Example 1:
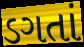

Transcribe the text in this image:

ડગતાં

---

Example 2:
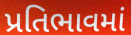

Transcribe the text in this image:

પ્રતિભાવમાં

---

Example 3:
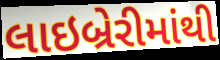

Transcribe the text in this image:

લાઇબ્રેરીમાંથી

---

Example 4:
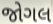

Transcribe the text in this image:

જોગલ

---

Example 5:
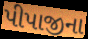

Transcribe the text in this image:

પીપાજીના